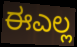
ಈಎಲ್ಲ